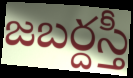
జబర్దస్తీ